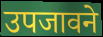
उपजावने